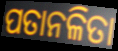
ପତାନଳିତା